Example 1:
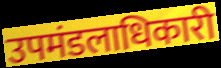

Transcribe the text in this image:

उपमंडलाधिकारी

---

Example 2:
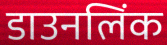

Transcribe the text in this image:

डाउनलिंक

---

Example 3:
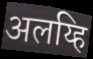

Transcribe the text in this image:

अलय्हि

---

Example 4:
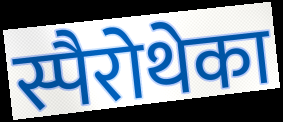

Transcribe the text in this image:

स्पैरोथेका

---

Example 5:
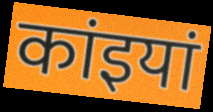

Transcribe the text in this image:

कांइयां